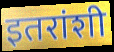
इतरांशी